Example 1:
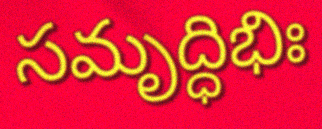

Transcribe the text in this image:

సమృద్ధిభిః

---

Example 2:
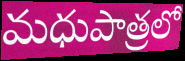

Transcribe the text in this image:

మధుపాత్రలో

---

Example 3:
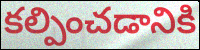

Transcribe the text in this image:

కల్పించడానికి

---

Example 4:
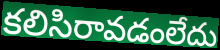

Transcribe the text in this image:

కలిసిరావడంలేదు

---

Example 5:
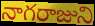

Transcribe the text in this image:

నాగరాజుని